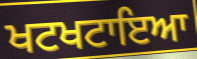
ਖਟਖਟਾਇਆ